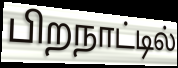
பிறநாட்டில்